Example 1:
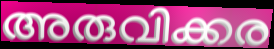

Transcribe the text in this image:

അരുവിക്കര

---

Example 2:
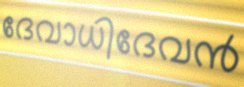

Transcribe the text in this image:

ദേവാധിദേവൻ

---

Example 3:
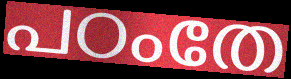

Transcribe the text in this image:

പഠംതേ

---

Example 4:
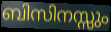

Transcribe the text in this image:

ബിസിനസ്സും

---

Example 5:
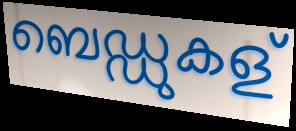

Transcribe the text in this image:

ബെഡ്ഡുകള്